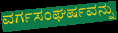
ವರ್ಗಸಂಘರ್ಷವನ್ನು